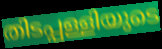
തിടപ്പള്ളിയുടെ